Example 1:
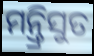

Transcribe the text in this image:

ମନ୍ତ୍ରିସୁତ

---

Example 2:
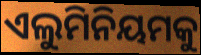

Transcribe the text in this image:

ଏଲୁମିନିୟମକୁ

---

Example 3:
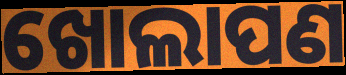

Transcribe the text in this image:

ଖୋଲାପଣ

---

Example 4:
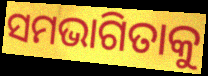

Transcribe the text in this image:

ସମଭାଗିତାକୁ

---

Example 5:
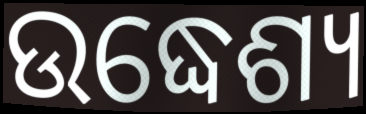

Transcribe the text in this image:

ଉଦ୍ଧେଶ୍ୟ